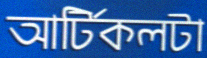
আর্টিকলটা